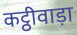
कट्ठीवाड़ा